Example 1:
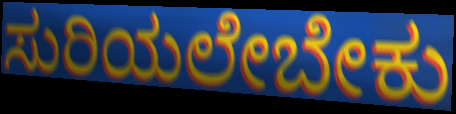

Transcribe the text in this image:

ಸುರಿಯಲೇಬೇಕು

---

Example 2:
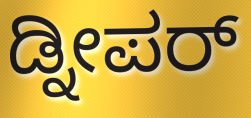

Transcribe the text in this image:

ಡ್ನೀಪರ್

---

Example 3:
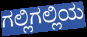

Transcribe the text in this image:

ಗಲ್ಲಿಗಲ್ಲಿಯ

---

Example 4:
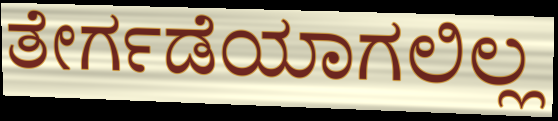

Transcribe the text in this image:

ತೇರ್ಗಡೆಯಾಗಲಿಲ್ಲ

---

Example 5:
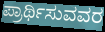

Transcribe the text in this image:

ಪ್ರಾರ್ಥಿಸುವವರ